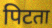
पिटता